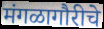
मंगळागौरीचे